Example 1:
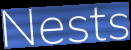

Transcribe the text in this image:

Nests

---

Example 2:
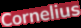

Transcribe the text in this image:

Cornelius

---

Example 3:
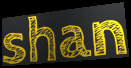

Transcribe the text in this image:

shan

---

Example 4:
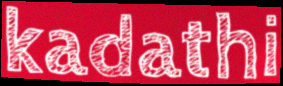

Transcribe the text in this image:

kadathi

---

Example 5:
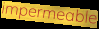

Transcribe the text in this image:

impermeable